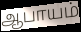
ஆபாயம்